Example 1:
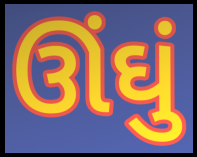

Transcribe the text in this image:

ઊંઘું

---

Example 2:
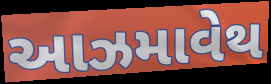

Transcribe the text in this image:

આઝમાવેથ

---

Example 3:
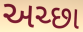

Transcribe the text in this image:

અચ્છા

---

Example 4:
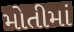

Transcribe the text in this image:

મોતીમાં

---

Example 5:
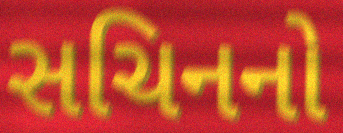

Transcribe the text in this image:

સચિનનો